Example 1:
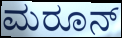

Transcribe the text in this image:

ಮರೂನ್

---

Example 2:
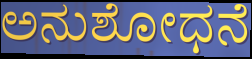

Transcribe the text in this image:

ಅನುಶೋಧನೆ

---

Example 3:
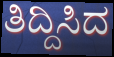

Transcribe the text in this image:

ತಿದ್ದಿಸಿದ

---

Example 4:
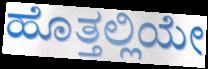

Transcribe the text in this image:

ಹೊತ್ತಲ್ಲಿಯೇ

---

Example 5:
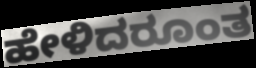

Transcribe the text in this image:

ಹೇಳಿದರೂಂತ